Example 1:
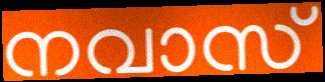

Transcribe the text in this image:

നവാസ്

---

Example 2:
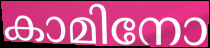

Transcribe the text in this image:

കാമിനോ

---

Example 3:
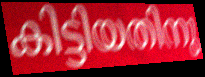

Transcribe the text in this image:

കിട്ടിയതിനു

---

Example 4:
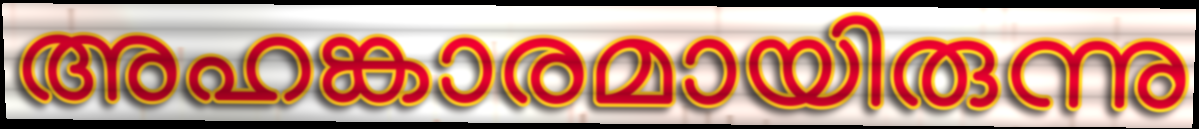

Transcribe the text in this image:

അഹങ്കാരമായിരുന്നു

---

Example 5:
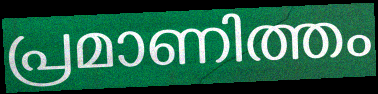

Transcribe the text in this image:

പ്രമാണിത്തം